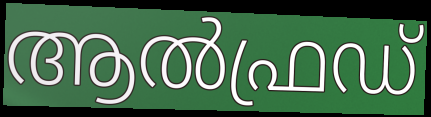
ആൽഫ്രഡ്